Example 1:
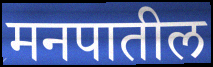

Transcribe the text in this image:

मनपातील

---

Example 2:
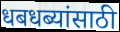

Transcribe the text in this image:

धबधब्यांसाठी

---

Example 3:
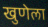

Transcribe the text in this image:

खुणेला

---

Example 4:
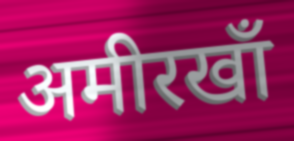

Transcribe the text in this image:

अमीरखाँ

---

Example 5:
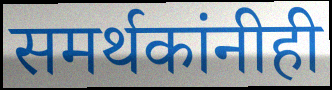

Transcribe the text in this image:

समर्थकांनीही